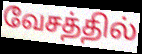
வேசத்தில்